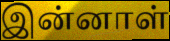
இன்னாள்